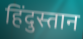
हिंदुस्तान